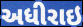
અધીરાઇ